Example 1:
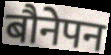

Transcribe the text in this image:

बौनेपन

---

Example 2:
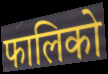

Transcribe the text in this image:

फालिको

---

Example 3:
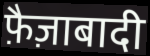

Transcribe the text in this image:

फ़ैज़ाबादी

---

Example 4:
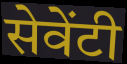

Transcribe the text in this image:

सेवेंटी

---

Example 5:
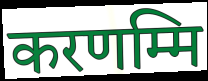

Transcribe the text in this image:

करणम्मि